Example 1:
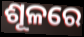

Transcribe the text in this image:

ଶୂଳରେ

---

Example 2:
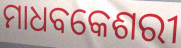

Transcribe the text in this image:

ମାଧବକେଶରୀ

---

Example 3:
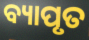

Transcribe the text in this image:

ବ୍ୟାପୃତ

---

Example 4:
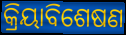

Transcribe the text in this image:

କ୍ରିୟାବିଶେଷଣ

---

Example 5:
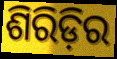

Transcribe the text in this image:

ଶିରିଡ଼ିର